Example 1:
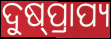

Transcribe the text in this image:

ଦୁଷ୍‌ପ୍ରାପ୍ୟ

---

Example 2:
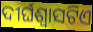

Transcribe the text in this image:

ଦୀର୍ଘଶ୍ୱାସଟିଏ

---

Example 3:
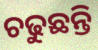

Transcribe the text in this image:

ଚଢୁଛନ୍ତି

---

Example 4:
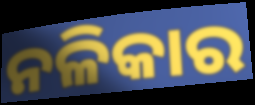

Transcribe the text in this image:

ନଳିକାର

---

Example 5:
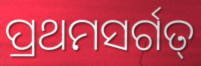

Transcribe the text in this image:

ପ୍ରଥମସର୍ଗତ୍